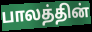
பாலத்தின்